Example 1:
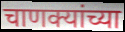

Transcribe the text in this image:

चाणक्यांच्या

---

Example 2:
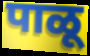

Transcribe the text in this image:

पाळू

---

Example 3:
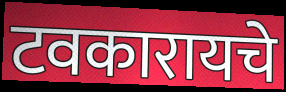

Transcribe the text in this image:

टवकारायचे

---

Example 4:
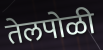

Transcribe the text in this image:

तेलपोळी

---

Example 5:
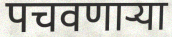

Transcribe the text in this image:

पचवणाऱ्या